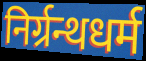
निर्ग्रन्थधर्म